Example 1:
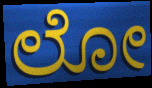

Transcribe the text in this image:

ಲೋ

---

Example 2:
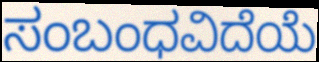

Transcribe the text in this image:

ಸಂಬಂಧವಿದೆಯೆ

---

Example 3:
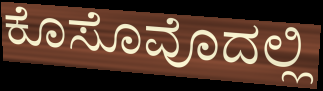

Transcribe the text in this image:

ಕೊಸೊವೊದಲ್ಲಿ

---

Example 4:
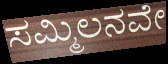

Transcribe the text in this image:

ಸಮ್ಮಿಲನವೇ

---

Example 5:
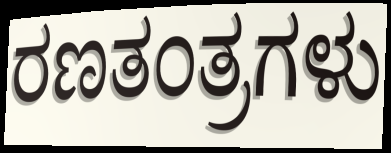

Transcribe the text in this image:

ರಣತಂತ್ರಗಳು